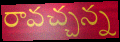
రావచ్చన్న